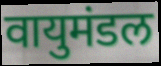
वायुमंडल